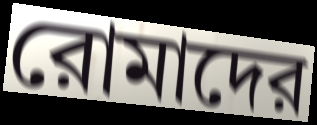
রোমাদের